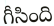
గీసింది